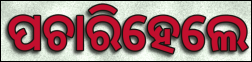
ପଚାରିହେଲେ